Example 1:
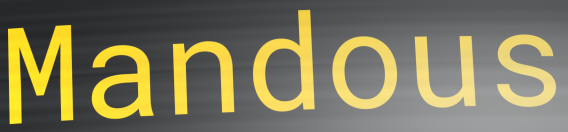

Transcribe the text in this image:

Mandous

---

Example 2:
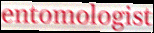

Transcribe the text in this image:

entomologist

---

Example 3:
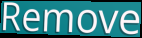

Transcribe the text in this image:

Remove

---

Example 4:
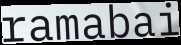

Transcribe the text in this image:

ramabai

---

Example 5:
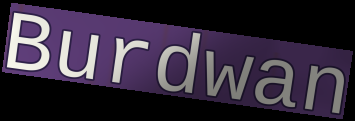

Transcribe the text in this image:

Burdwan